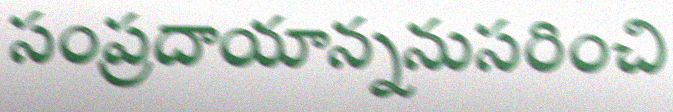
సంప్రదాయాన్ననుసరించి